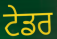
ਟੇਡਰ